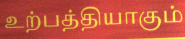
உற்பத்தியாகும்